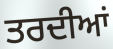
ਤਰਦੀਆਂ